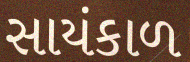
સાયંકાળ